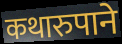
कथारुपाने